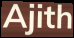
Ajith